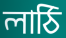
লাঠি